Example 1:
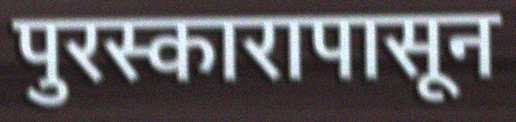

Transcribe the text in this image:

पुरस्कारापासून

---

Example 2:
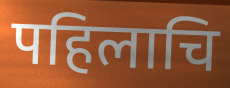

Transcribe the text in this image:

पहिलाचि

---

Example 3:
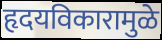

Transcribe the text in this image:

हृदयविकारामुळे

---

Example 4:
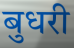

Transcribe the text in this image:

बुधरी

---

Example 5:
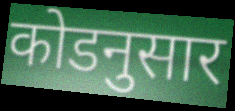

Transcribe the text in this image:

कोडनुसार